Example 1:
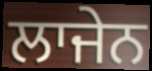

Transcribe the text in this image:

ਲਾਜੇਨ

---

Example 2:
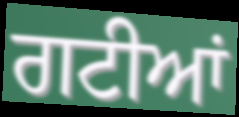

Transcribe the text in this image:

ਗਟੀਆਂ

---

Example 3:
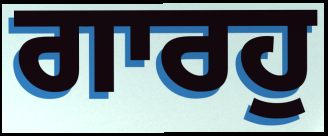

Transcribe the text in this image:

ਗਾਰਹੁ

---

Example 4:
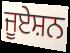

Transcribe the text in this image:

ਜੂਏਸ਼ਨ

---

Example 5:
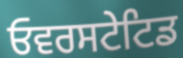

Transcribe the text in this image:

ਓਵਰਸਟੇਟਿਡ